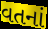
વતનાં